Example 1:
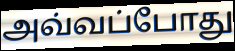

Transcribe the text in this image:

அவ்வப்போது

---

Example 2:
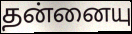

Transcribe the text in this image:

தன்னையு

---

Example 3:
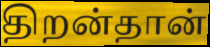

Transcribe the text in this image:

திறன்தான்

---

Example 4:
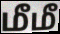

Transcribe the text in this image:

மீமீ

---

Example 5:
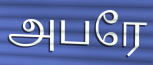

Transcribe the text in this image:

அபரே